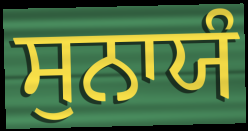
ਸੁਨਾਯੰ